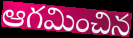
ఆగమించిన